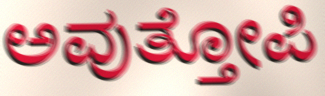
ಅವುತ್ತೋಪಿ